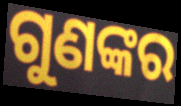
ଗୁଣଙ୍କର